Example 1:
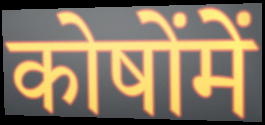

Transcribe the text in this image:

कोषोंमें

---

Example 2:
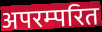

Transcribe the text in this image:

अपरम्परित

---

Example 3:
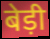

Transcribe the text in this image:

बेड़ी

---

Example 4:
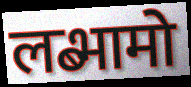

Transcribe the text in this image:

लब्भामो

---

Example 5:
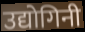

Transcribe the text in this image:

उद्योगिनी